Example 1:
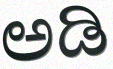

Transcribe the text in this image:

ಅಡಿ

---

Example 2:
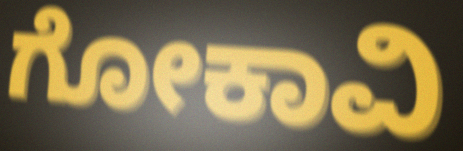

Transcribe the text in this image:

ಗೋಕಾವಿ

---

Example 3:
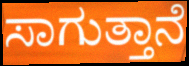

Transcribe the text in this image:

ಸಾಗುತ್ತಾನೆ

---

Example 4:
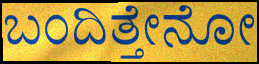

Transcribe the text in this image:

ಬಂದಿತ್ತೇನೋ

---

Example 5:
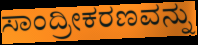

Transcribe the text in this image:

ಸಾಂದ್ರೀಕರಣವನ್ನು